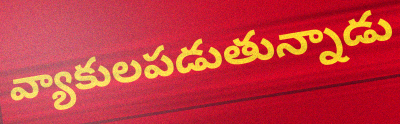
వ్యాకులపడుతున్నాడు